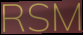
RSM